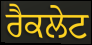
ਰੈਕਲੇਟ